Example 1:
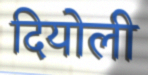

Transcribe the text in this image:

दियोली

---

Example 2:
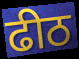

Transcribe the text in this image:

ढीठ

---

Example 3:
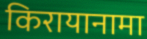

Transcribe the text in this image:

किरायानामा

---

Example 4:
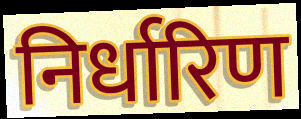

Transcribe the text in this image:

निर्धारिण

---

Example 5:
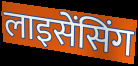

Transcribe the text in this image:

लाइसेंसिंग